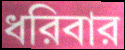
ধরিবার